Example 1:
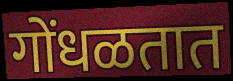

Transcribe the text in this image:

गोंधळतात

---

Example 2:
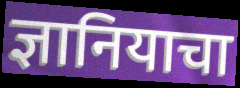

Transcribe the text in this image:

ज्ञानियाचा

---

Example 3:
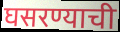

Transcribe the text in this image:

घसरण्याची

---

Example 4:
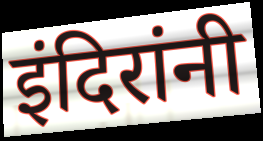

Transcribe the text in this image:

इंदिरांनी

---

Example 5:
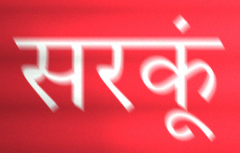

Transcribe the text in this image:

सरकूं